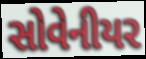
સોવેનીયર